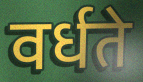
वर्धते